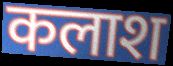
कलाश